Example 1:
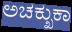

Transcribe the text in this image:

ಅಚಕ್ಖುಕಾ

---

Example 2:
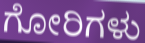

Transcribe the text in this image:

ಗೋರಿಗಳು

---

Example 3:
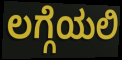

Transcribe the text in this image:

ಲಗ್ಗೆಯಲಿ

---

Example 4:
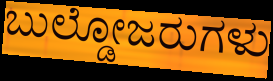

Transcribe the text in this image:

ಬುಲ್ಡೋಜರುಗಳು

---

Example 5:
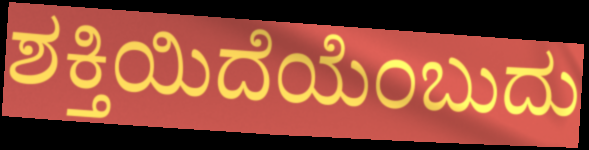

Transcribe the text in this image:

ಶಕ್ತಿಯಿದೆಯೆಂಬುದು